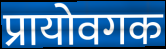
प्रायोवगक